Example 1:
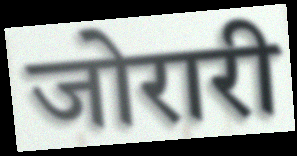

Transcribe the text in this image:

जोरारी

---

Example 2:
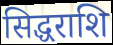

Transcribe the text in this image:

सिद्धराशि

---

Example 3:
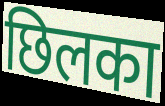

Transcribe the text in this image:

छिलका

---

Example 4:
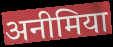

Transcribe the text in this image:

अनीमिया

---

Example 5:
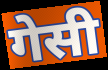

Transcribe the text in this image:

गेसी